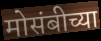
मोसंबीच्या